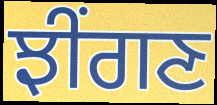
ਝੀਂਗਣ